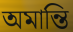
অমান্তি